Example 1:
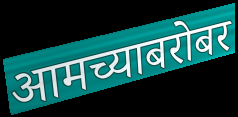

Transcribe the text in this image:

आमच्याबरोबर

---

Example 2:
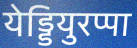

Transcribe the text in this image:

येड्डियुरप्पा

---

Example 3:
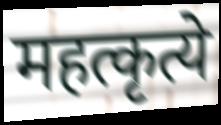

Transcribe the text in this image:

महत्कृत्ये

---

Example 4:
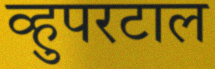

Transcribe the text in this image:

व्हुपरटाल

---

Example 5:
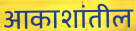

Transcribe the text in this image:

आकाशांतील